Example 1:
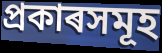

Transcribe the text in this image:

প্ৰকাৰসমূহ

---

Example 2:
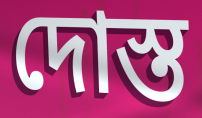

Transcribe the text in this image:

দোস্ত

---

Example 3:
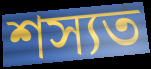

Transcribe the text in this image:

শস্যত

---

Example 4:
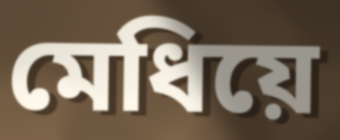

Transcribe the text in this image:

মেধিয়ে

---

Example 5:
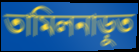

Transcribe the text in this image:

তামিলনাড়ুত